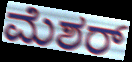
ಮೆಶರ್